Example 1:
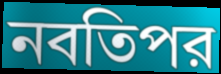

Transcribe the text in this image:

নবতিপর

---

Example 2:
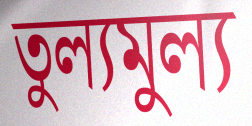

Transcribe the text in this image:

তুল্যমুল্য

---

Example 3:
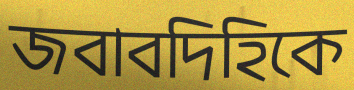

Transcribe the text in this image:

জবাবদিহিকে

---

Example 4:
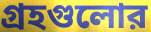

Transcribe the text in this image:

গ্রহগুলোর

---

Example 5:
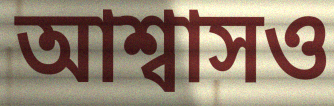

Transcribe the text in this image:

আশ্বাসও